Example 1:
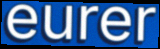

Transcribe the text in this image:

eurer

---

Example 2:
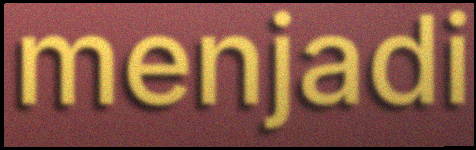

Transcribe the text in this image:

menjadi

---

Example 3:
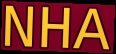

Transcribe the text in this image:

NHA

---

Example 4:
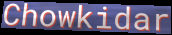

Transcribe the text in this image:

Chowkidar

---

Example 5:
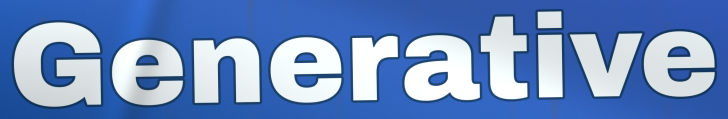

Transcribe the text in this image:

Generative